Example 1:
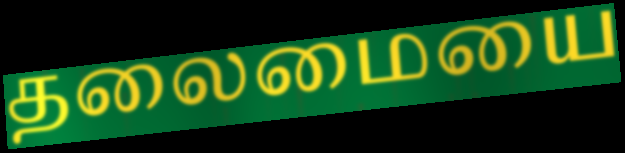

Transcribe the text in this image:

தலைமையை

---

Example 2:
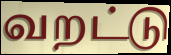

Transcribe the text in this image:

வறட்டு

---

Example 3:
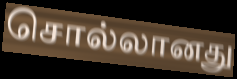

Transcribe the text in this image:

சொல்லானது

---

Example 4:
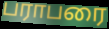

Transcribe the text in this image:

பராபரை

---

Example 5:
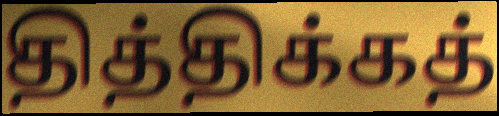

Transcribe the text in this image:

தித்திக்கத்